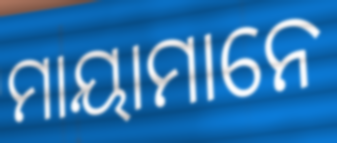
ମାୟାମାନେ